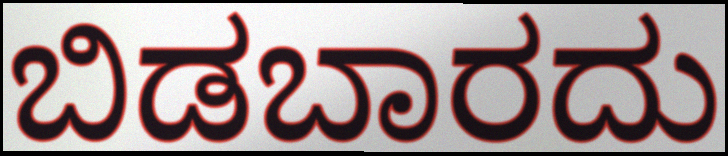
ಬಿಡಬಾರದು